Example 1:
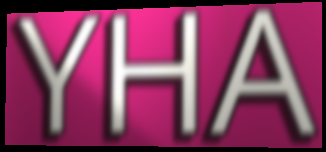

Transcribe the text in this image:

YHA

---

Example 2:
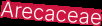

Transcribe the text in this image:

Arecaceae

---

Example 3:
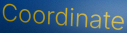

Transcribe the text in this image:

Coordinate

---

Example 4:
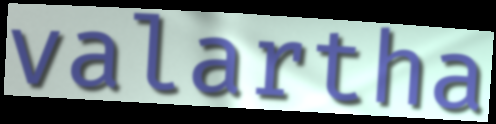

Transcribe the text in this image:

valartha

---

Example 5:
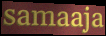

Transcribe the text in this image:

samaaja